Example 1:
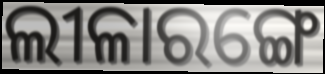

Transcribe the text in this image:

ଲୀଳାରଙ୍ଗେ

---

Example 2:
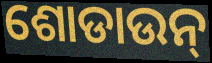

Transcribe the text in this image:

ଶୋଡାଉନ୍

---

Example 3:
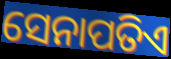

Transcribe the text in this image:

ସେନାପତିଏ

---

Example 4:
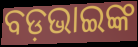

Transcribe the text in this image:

ବଡ଼ଭାଇଙ୍କ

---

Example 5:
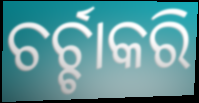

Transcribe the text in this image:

ଚର୍ଚ୍ଚାକରି